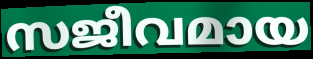
സജീവമായ